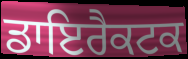
ਡਾਇਰੈਕਟਕ